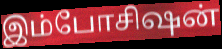
இம்போசிஷன்